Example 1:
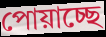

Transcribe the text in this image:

পোয়াচ্ছে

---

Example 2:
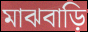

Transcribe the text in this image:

মাঝবাড়ি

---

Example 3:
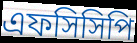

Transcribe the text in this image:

এফসিসিপি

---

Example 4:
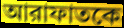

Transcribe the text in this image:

আরাফাতকে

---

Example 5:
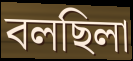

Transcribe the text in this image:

বলছিলা